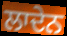
ਲਾਦੇਨ